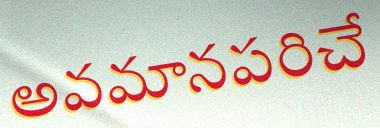
అవమానపరిచే